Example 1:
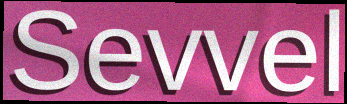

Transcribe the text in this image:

Sevvel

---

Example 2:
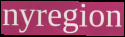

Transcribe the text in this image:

nyregion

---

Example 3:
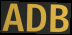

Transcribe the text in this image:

ADB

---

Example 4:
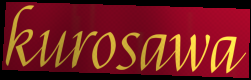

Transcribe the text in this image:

kurosawa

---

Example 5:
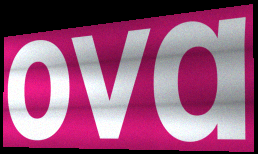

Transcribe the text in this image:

ova